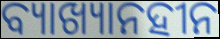
ବ୍ୟାଖ୍ୟାନହୀନ